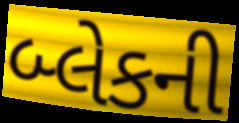
બ્લેકની